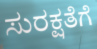
ಸುರಕ್ಷತೆಗೆ